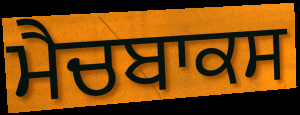
ਮੈਚਬਾਕਸ